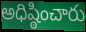
అధిష్ఠించారు